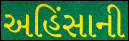
અહિંસાની